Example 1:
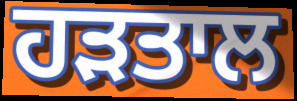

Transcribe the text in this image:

ਹੜਤਾਲ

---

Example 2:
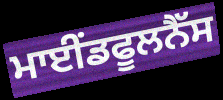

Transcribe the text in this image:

ਮਾਈਂਡਫੂਲਨੈੱਸ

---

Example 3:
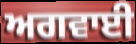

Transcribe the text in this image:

ਅਗਵਾਈ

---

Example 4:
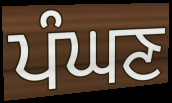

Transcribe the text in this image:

ਪੰਘਣ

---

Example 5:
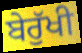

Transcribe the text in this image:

ਬੇਰੁੱਖੀ